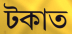
টকাত